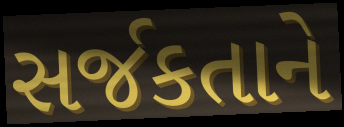
સર્જકતાને